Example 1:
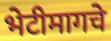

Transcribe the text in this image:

भेटीमागचे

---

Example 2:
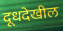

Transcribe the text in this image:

दूधदेखील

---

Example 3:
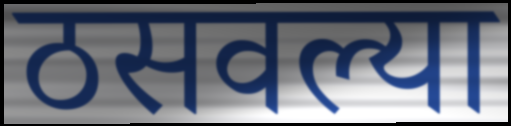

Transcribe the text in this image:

ठसवल्या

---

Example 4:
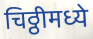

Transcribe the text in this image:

चिठ्ठीमध्ये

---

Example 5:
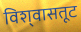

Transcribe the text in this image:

विश्वासतूट